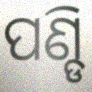
ପଣ୍ଡି